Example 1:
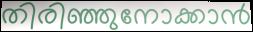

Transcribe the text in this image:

തിരിഞ്ഞുനോക്കാൻ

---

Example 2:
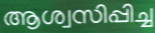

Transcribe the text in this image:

ആശ്വസിപ്പിച്ച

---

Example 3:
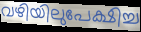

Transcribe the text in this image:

വഴിയിലുപേക്ഷിച്ച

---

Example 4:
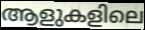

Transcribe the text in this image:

ആളുകളിലെ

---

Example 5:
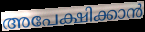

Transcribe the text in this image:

അപേക്ഷിക്കാൻ